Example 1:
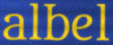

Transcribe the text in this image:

albel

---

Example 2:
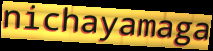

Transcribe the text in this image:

nichayamaga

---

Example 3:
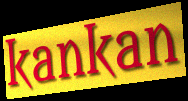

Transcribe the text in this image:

kankan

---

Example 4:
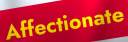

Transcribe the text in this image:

Affectionate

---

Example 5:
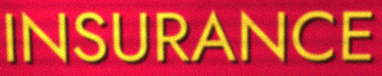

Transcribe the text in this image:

INSURANCE